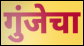
गुंजेचा